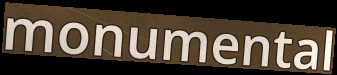
monumental